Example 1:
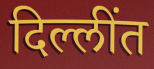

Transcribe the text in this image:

दिल्लींत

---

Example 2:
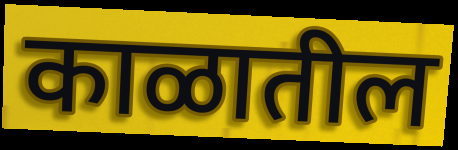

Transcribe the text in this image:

काळातील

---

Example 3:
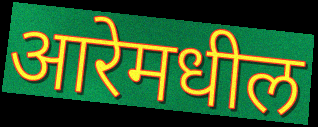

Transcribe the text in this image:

आरेमधील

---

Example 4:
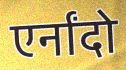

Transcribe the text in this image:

एर्नांदो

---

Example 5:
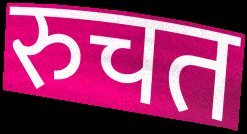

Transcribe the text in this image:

रुचत